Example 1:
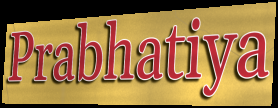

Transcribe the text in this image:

Prabhatiya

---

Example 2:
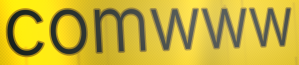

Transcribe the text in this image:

comwww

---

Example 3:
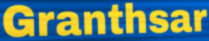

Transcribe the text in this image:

Granthsar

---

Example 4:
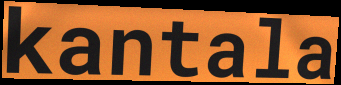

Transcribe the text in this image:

kantala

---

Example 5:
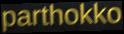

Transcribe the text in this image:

parthokko